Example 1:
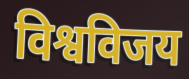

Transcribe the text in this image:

विश्वविजय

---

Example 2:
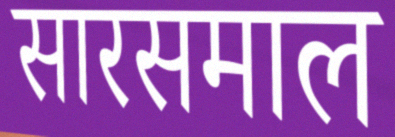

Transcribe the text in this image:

सारसमाल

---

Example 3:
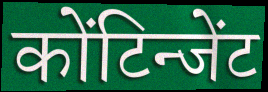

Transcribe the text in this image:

कोंटिन्जेंट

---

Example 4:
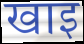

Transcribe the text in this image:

खाइ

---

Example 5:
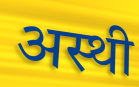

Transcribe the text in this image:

अस्थी